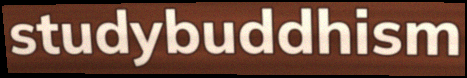
studybuddhism